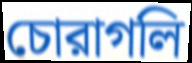
চোরাগলি